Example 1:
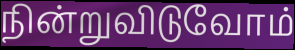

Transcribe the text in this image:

நின்றுவிடுவோம்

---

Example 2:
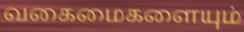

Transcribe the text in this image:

வகைமைகளையும்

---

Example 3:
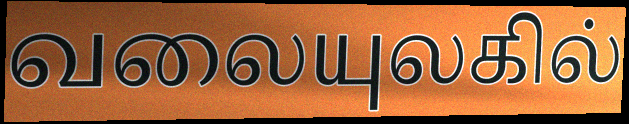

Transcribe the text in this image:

வலையுலகில்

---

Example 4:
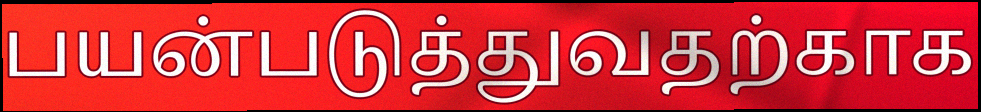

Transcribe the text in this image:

பயன்படுத்துவதற்காக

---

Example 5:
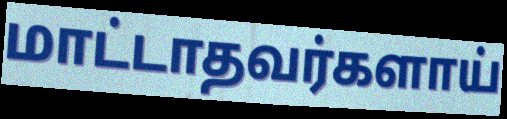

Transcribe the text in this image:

மாட்டாதவர்களாய்